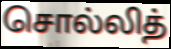
சொல்லித்